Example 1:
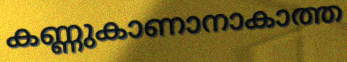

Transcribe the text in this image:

കണ്ണുകാണാനാകാത്ത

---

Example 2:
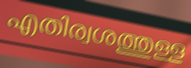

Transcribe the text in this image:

എതിര്വശത്തുള്ള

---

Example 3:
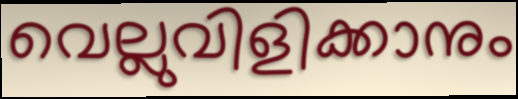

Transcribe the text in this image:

വെല്ലുവിളിക്കാനും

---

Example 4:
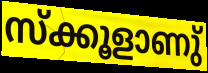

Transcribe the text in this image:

സ്ക്കൂളാണു്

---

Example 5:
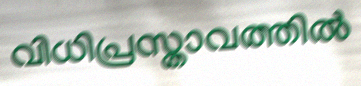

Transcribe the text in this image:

വിധിപ്രസ്താവത്തിൽ